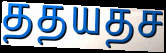
ததயதச